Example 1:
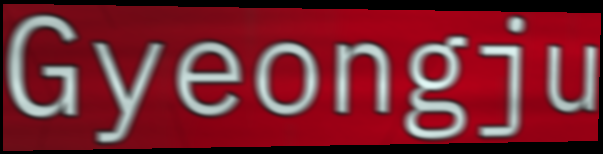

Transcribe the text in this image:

Gyeongju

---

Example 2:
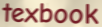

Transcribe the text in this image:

texbook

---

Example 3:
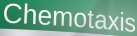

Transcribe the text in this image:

Chemotaxis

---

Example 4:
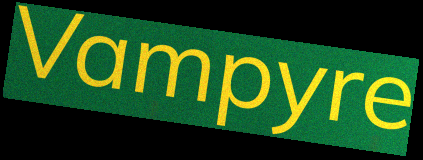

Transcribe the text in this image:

Vampyre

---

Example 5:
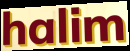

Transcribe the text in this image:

halim